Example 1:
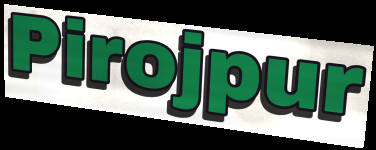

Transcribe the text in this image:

Pirojpur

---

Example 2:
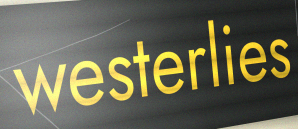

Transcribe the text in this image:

westerlies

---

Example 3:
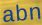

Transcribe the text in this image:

abn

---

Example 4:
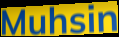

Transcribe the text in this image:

Muhsin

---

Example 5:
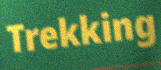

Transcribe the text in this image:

Trekking